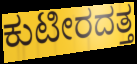
ಕುಟೀರದತ್ತ